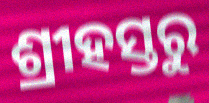
ଶ୍ରୀହସ୍ତରୁ